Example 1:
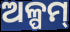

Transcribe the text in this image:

ଅଳ୍ପମ୍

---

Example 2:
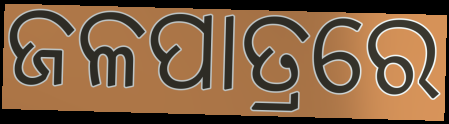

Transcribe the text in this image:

ଜଳପାତ୍ରରେ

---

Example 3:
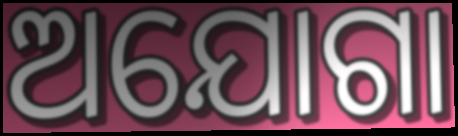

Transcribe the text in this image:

ଅଯୋଗା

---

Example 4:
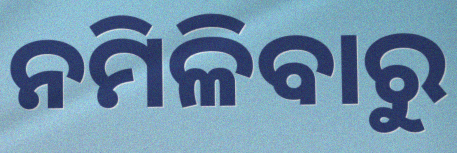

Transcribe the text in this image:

ନମିଳିବାରୁ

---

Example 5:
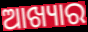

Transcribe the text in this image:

ଆଖ୍ୟାର